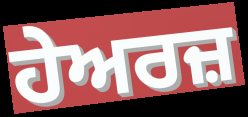
ਹੇਅਰਜ਼